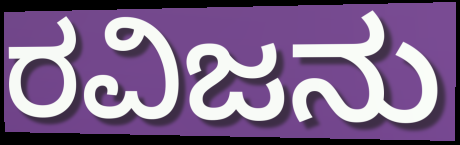
ರವಿಜನು